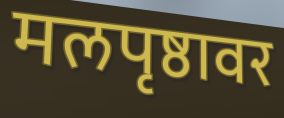
मलपृष्ठावर